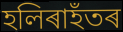
হলিৰাহঁতৰ